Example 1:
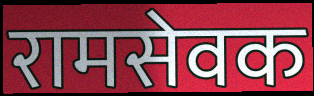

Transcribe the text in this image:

रामसेवक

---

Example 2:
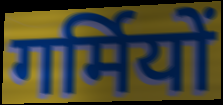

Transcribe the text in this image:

गर्मियों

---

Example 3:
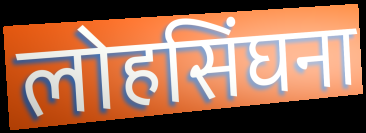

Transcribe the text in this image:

लोहसिंघना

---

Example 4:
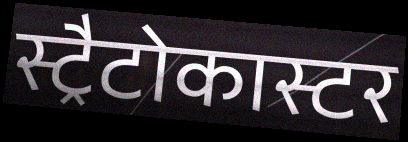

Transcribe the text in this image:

स्ट्रैटोकास्टर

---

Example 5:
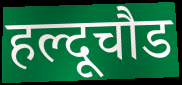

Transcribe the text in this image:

हल्दूचौड